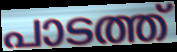
പാടത്ത്